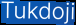
Tukdoji